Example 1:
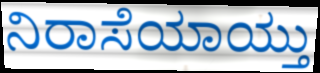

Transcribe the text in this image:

ನಿರಾಸೆಯಾಯ್ತು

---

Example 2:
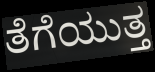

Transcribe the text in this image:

ತೆಗೆಯುತ್ತ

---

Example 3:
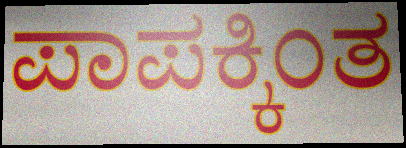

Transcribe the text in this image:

ಪಾಪಕ್ಕಿಂತ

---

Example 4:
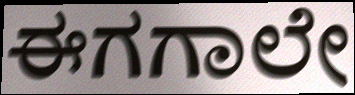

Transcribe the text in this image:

ಈಗಗಾಲೇ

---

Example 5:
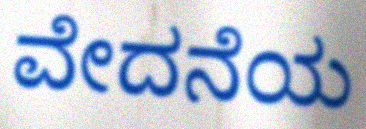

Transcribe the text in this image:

ವೇದನೆಯ